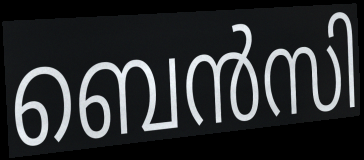
ബെൻസി